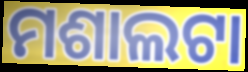
ମଶାଲଟା